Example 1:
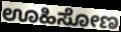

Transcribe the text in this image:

ಊಹಿಸೋಣ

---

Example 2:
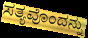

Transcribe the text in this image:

ಸತ್ಯವೊಂದನ್ನು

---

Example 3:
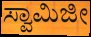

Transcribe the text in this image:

ಸ್ವಾಮಿಜೀ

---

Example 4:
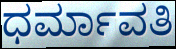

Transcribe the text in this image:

ಧರ್ಮಾವತಿ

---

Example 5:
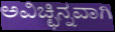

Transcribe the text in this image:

ಅವಿಚ್ಛಿನ್ನವಾಗಿ